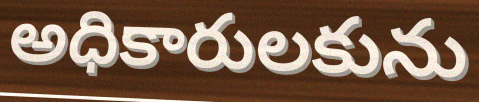
అధికారులకును